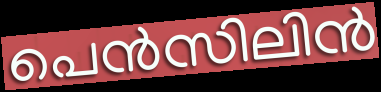
പെൻസിലിൻ